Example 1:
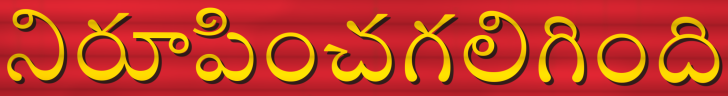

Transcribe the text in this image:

నిరూపించగలిగింది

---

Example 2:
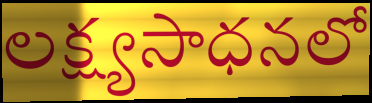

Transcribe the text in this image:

లక్ష్యసాధనలో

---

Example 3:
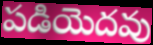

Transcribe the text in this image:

పడియెదవు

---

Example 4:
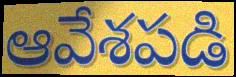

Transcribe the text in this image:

ఆవేశపడి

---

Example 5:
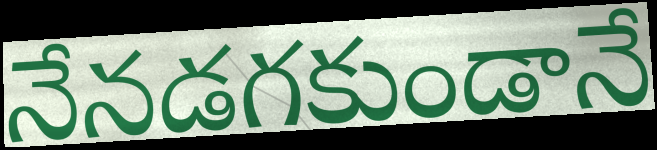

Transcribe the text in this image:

నేనడగకుండానే